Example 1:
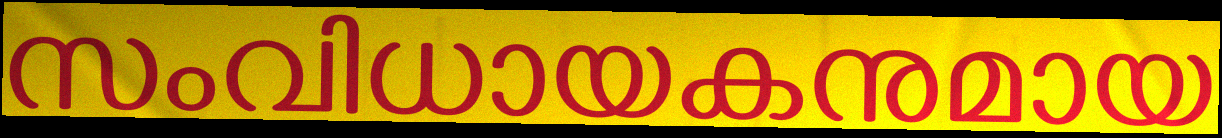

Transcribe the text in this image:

സംവിധായകനുമായ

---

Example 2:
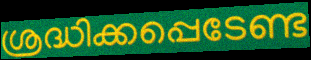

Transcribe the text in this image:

ശ്രദ്ധിക്കപ്പെടേണ്ട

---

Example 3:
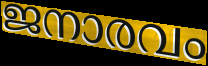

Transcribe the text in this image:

ജനാരവം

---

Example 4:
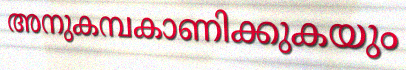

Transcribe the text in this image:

അനുകമ്പകാണിക്കുകയും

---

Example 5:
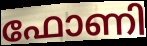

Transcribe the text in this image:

ഫോണി